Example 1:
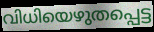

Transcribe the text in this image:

വിധിയെഴുതപ്പെട്ട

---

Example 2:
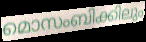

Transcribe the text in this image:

മൊസംബിക്കിലും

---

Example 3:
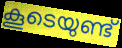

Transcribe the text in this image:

കൂടെയുണ്ട്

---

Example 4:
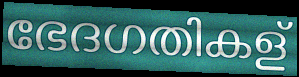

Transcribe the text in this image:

ഭേദഗതികള്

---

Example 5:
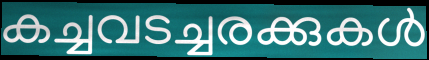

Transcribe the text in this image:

കച്ചവടച്ചരക്കുകൾ